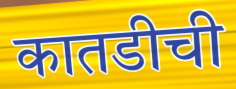
कातडीची